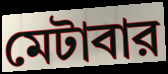
মেটাবার